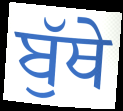
ਬੁੱਥੇ